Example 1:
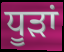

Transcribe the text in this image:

ਧੂਡ਼ਾਂ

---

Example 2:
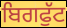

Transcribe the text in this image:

ਬਿਗਫੁੱਟ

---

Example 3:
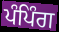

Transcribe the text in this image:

ਪੰਪਿੰਗ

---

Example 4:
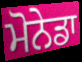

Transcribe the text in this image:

ਮੋਨੇਡਾ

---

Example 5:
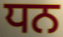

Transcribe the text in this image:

ਧਨ